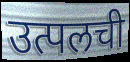
उत्पलची